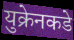
युक्रेनकडे